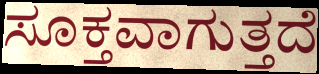
ಸೂಕ್ತವಾಗುತ್ತದೆ